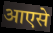
आएसे